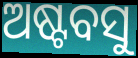
ଅଷ୍ଟବସୁ